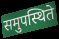
समुपस्थिते